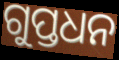
ଗୁପ୍ତଧନ